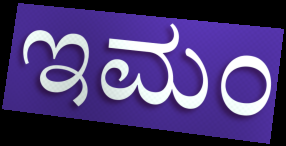
ಇಮಂ